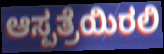
ಆಸ್ಪತ್ರೆಯಿರಲಿ